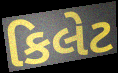
કિલેટ